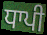
ਧਾਪੀ